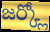
జర్క్లో